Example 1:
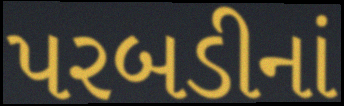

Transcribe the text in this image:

પરબડીનાં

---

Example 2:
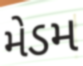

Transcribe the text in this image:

મેડમ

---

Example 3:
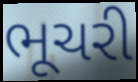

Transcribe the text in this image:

ભૂચરી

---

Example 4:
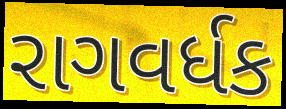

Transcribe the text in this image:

રાગવર્ધક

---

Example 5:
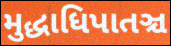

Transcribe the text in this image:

મુદ્ધાધિપાતઞ્ચ